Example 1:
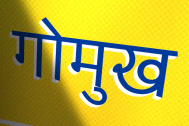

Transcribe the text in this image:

गोमुख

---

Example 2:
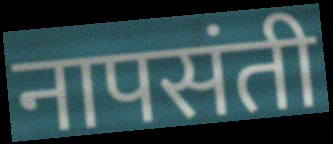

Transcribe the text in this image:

नापसंती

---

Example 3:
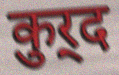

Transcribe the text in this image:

कुर्द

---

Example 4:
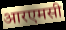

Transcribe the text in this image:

आरएमसी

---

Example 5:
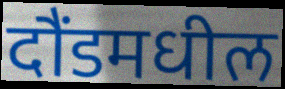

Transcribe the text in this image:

दौंडमधील